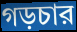
গড়চার